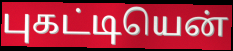
புகட்டியென்